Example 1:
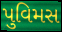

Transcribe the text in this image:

પુવિમસ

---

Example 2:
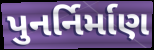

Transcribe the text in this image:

પુનર્નિર્માણ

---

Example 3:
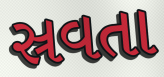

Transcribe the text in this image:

સ્રવતા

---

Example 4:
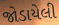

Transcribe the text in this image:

જોડાયેલી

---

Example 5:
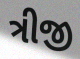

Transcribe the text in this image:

ત્રીજી